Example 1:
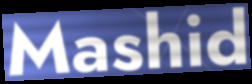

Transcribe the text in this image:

Mashid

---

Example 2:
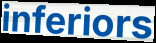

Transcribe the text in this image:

inferiors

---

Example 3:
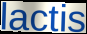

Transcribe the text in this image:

lactis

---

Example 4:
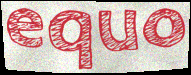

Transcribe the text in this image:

equo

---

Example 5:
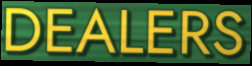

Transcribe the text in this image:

DEALERS